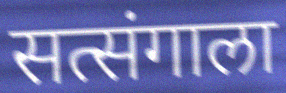
सत्संगाला